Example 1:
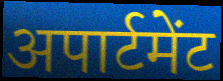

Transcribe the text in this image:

अपार्टमेंट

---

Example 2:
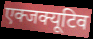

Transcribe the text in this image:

एक्जक्यूटिव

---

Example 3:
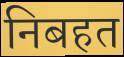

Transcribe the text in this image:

निबहत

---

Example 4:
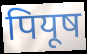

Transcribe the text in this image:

पियूष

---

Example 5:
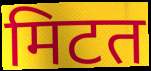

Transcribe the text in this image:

मिटत